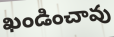
ఖండించావు